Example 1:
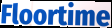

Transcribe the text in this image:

Floortime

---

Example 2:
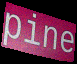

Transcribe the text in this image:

pine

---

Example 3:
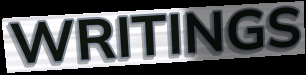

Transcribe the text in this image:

WRITINGS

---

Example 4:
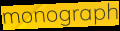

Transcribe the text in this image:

monograph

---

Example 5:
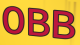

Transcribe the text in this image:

OBB